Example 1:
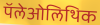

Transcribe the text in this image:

पॅलेओलिथिक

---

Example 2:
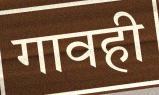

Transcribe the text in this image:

गावही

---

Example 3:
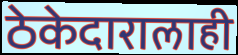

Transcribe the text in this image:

ठेकेदारालाही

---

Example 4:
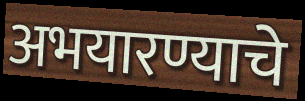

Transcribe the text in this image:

अभयारण्याचे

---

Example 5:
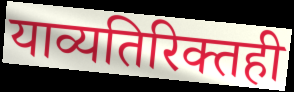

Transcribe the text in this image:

याव्यतिरिक्तही